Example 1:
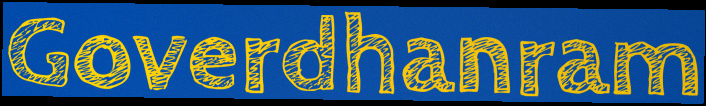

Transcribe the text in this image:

Goverdhanram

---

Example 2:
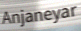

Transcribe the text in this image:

Anjaneyar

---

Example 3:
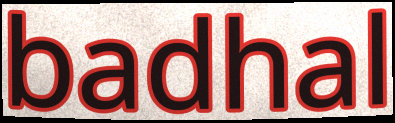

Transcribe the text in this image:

badhal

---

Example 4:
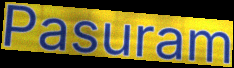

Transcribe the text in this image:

Pasuram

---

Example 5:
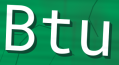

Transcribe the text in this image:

Btu